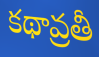
కథావ్రతీ